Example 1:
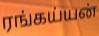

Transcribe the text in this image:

ரங்கய்யன்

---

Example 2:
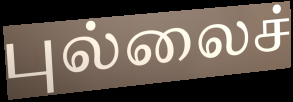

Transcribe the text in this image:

புல்லைச்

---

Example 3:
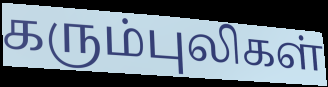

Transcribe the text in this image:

கரும்புலிகள்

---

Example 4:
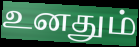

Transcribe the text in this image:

உனதும்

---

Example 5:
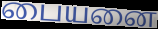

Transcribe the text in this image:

பையனை